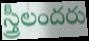
స్త్రీలందరు